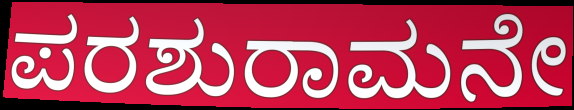
ಪರಶುರಾಮನೇ